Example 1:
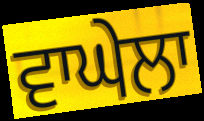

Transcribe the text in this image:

ਵਾਘੇਲਾ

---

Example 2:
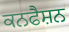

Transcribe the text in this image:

ਕਨਫੈਸ਼ਨ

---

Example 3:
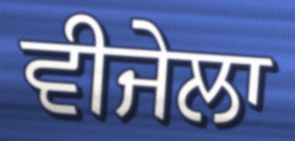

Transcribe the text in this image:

ਵੀਜੇਲਾ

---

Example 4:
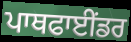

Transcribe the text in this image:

ਪਾਥਫਾਈਂਡਰ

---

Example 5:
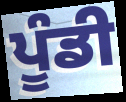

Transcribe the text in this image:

ਪੂੰਡੀ